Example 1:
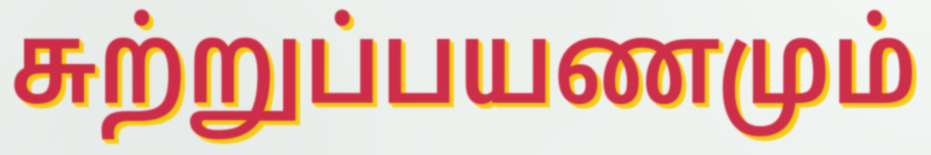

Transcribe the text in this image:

சுற்றுப்பயணமும்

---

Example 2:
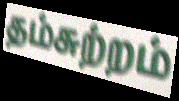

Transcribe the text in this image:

தம்சுற்றம்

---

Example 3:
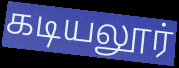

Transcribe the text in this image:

கடியலூர்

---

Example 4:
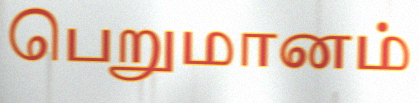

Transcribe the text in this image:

பெறுமானம்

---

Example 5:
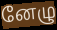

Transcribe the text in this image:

னேழு